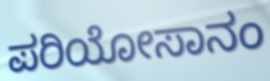
ಪರಿಯೋಸಾನಂ